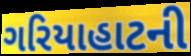
ગરિયાહાટની